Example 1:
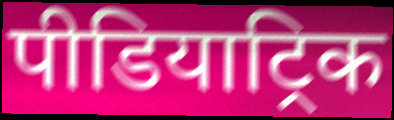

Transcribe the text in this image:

पीडियाट्रिक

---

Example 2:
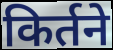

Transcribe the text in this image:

किर्तने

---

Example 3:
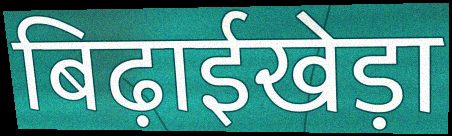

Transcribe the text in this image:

बिढ़ाईखेड़ा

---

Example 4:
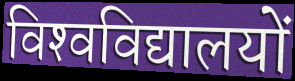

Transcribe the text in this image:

विश्‍वविद्यालयों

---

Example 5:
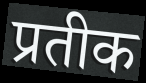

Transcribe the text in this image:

प्रतीक